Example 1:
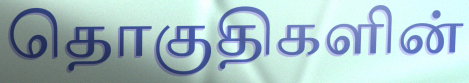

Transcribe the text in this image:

தொகுதிகளின்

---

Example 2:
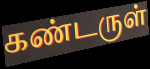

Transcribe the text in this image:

கண்டருள்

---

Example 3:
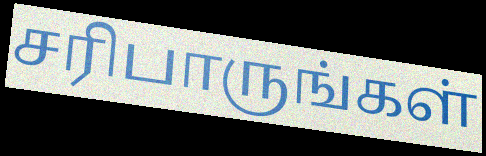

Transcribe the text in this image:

சரிபாருங்கள்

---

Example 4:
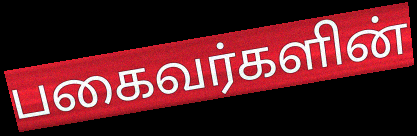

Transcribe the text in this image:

பகைவர்களின்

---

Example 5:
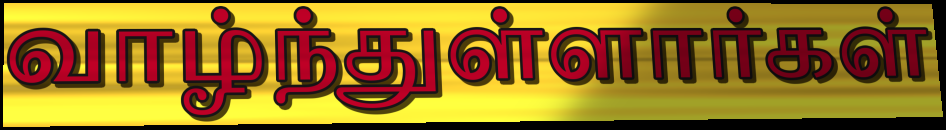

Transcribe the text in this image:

வாழ்ந்துள்ளார்கள்